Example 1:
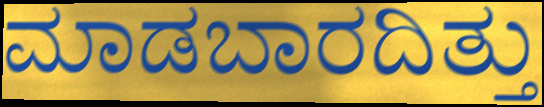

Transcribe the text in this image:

ಮಾಡಬಾರದಿತ್ತು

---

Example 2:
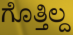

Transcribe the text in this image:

ಗೊತ್ತಿಲ್ದ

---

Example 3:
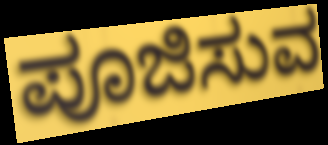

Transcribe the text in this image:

ಪೂಜಿಸುವ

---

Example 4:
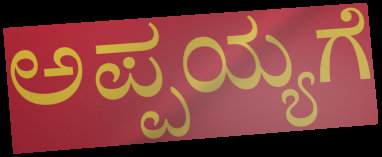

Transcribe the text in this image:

ಅಪ್ಪಯ್ಯಗೆ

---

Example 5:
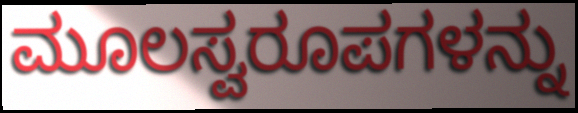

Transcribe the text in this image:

ಮೂಲಸ್ವರೂಪಗಳನ್ನು